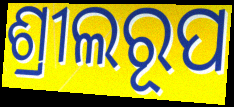
ଶ୍ରୀଲରୂପ